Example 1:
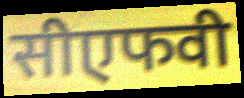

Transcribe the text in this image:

सीएफवी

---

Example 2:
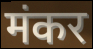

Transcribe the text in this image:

मंकर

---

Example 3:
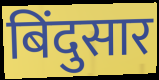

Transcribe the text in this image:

बिंदुसार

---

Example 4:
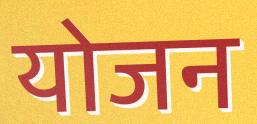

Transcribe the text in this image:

योजन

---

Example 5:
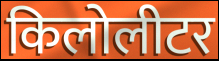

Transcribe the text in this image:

किलोलीटर